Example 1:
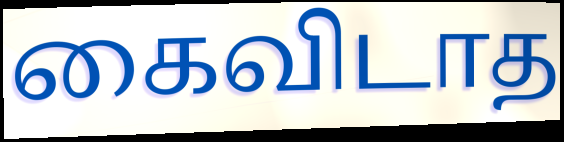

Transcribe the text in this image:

கைவிடாத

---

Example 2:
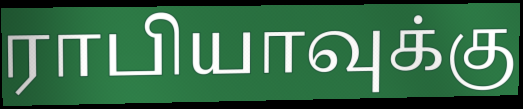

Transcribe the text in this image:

ராபியாவுக்கு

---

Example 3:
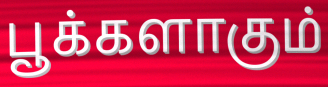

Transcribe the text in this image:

பூக்களாகும்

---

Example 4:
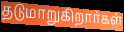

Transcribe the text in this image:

தடுமாறுகிறார்கள்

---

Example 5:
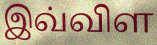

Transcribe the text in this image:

இவ்விள